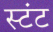
स्टंट